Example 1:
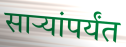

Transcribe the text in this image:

साऱ्यांपर्यंत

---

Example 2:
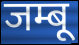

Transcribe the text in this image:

जम्बू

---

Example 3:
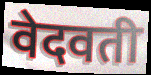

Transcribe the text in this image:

वेदवती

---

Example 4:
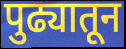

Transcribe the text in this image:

पुढ्यातून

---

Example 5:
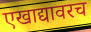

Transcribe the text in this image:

एखाद्यावरच